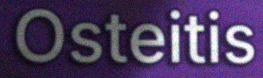
Osteitis